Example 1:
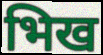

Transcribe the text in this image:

भिख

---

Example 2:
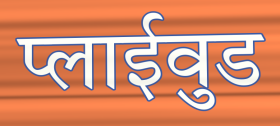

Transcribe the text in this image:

प्‍लाईवुड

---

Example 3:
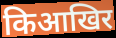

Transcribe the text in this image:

किआखिर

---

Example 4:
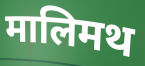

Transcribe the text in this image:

मालिमथ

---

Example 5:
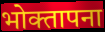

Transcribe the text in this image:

भोक्तापना